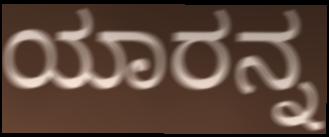
ಯಾರನ್ನ